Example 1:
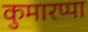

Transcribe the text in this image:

कुमारप्पा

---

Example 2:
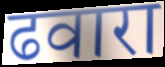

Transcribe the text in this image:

ढवारा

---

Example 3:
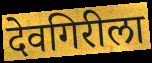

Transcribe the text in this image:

देवगिरीला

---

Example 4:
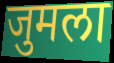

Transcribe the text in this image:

जुमला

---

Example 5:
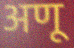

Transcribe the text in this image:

अणू